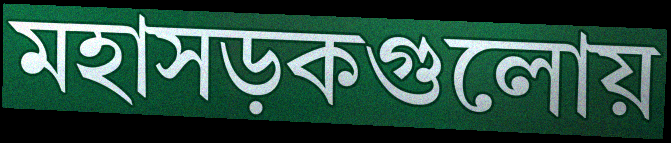
মহাসড়কগুলোয়